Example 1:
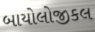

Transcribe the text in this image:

બાયોલોજીકલ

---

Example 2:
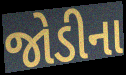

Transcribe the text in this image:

જોડીના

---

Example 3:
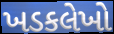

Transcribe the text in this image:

ખડકલેખો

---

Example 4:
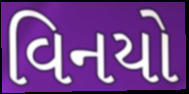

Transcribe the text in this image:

વિનયો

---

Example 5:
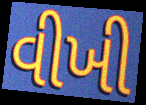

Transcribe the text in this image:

વીખી